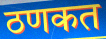
ठणकत